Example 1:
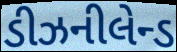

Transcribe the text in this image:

ડીઝનીલેન્ડ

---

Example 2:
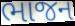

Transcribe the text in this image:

ભાજન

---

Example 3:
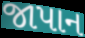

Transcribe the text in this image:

જાપાન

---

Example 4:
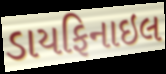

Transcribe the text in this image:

ડાયફિનાઇલ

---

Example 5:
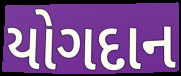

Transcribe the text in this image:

યોગદાન